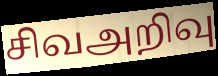
சிவஅறிவு